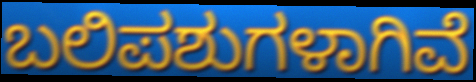
ಬಲಿಪಶುಗಳಾಗಿವೆ